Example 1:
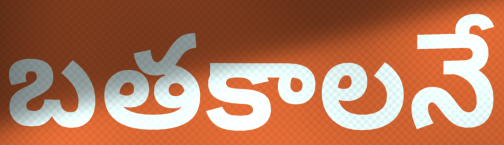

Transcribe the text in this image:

బతకాలనే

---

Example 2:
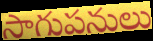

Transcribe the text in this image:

సాగుపనులు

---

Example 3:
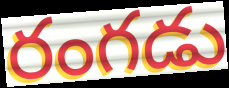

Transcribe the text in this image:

రంగడు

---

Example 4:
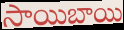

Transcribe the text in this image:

సాయిబాయి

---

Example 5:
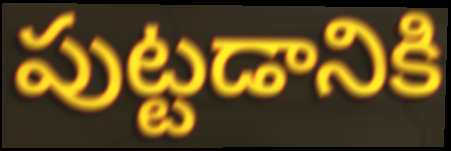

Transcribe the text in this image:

పుట్టడానికి